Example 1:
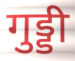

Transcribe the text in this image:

गुड्डी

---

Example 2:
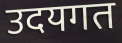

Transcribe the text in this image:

उदयगत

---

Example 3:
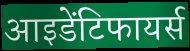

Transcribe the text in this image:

आइडेंटिफायर्स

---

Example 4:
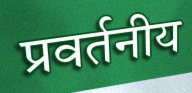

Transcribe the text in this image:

प्रवर्तनीय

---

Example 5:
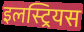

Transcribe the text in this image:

इलस्ट्रियस